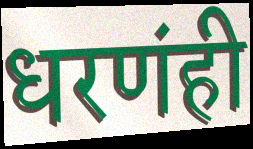
धरणंही